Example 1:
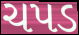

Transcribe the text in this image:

ચપડ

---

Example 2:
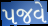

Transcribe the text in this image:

પજવે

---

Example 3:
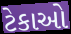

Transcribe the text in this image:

ટેકાઓ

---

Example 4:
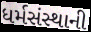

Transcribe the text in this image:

ધર્મસંસ્થાની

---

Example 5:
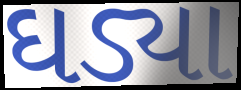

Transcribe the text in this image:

ઘડ્યા